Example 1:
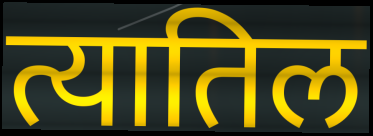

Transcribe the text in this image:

त्यातिल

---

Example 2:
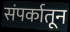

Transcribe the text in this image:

संपर्कातून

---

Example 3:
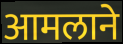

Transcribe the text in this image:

आमलाने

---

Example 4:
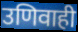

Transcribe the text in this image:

उणिवाही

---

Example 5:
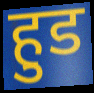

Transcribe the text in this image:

हुड